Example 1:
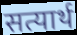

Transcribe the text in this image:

सत्यार्थ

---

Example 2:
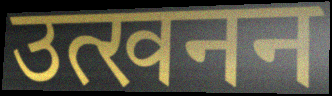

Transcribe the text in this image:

उत्खनन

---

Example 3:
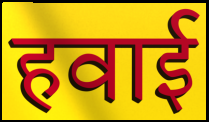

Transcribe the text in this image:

हवाई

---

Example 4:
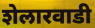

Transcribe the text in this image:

शेलारवाडी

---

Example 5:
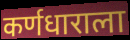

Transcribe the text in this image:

कर्णधाराला